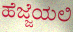
ಹೆಜ್ಜೆಯಲಿ